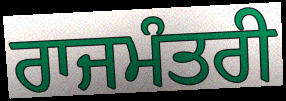
ਰਾਜਮੰਤਰੀ